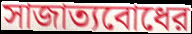
সাজাত্যবোধের